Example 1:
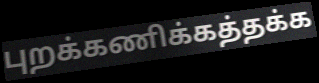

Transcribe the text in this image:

புறக்கணிக்கத்தக்க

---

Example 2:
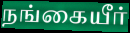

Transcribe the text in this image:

நங்கையீர்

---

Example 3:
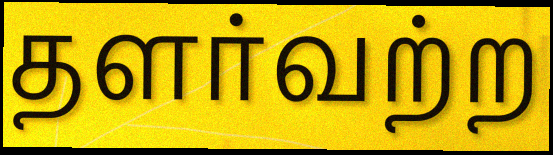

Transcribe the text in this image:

தளர்வற்ற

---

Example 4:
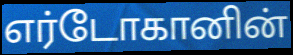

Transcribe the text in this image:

எர்டோகானின்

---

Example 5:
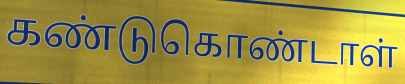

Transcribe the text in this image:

கண்டுகொண்டாள்